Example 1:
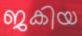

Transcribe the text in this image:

ജകിയ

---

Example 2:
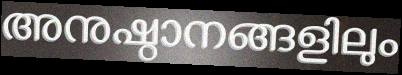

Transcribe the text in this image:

അനുഷ്ഠാനങ്ങളിലും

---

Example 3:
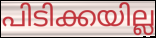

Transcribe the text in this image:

പിടിക്കയില്ല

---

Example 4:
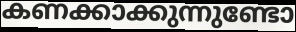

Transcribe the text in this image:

കണക്കാക്കുന്നുണ്ടോ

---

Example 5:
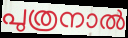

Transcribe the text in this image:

പുത്രനാൽ